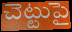
చెట్టుపై